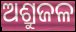
ଅଶ୍ରୁଜଳ